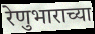
रेणुभाराच्या